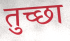
तुच्छा